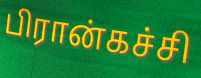
பிரான்கச்சி